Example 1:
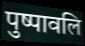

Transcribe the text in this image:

पुष्पावलि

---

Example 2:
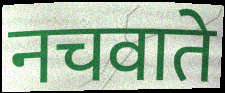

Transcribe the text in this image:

नचवाते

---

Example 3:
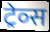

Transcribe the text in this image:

ट्रेव्स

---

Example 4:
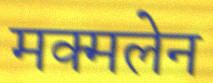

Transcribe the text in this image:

मक्मलेन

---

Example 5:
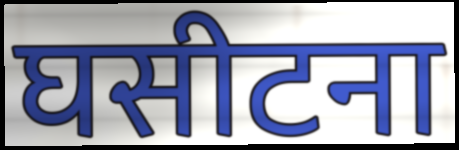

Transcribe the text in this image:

घसीटना